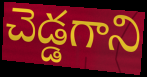
చెడ్డగాని